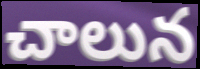
చాలున